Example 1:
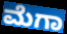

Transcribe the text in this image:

ಮೆಗಾ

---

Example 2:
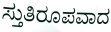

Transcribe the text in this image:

ಸ್ತುತಿರೂಪವಾದ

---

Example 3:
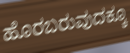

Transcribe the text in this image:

ಹೊರಬರುವುದಕ್ಕೂ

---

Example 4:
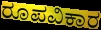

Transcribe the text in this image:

ರೂಪವಿಕಾರ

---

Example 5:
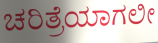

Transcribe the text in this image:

ಚರಿತ್ರೆಯಾಗಲೀ